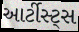
આર્ટીસ્ટ્સ